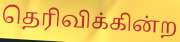
தெரிவிக்கின்ற